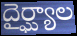
దైర్ఘ్యాల